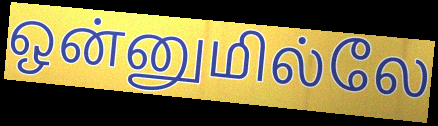
ஒன்னுமில்லே